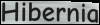
Hibernia